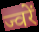
ज्वरें